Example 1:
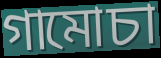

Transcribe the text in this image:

গামোচা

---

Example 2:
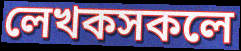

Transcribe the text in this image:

লেখকসকলে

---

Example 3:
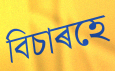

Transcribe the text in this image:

বিচাৰহে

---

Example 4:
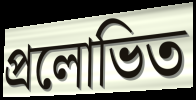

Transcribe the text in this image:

প্ৰলোভিত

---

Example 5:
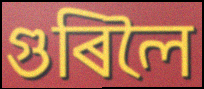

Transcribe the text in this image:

গুৰিলৈ